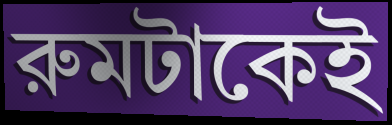
রুমটাকেই